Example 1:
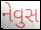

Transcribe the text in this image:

નેવુસ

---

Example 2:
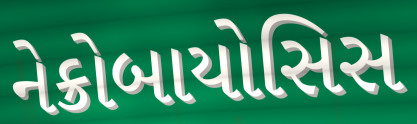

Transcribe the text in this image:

નેક્રોબાયોસિસ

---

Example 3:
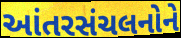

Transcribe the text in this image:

આંતરસંચલનોને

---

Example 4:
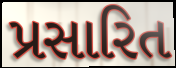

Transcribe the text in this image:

પ્રસારિત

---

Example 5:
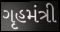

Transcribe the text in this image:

ગૃહમંત્રી